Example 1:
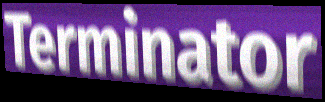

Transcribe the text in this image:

Terminator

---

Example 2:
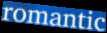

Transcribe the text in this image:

romantic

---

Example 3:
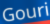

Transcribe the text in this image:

Gouri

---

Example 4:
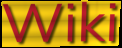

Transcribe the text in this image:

Wiki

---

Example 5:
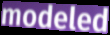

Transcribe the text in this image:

modeled